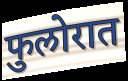
फुलोरात